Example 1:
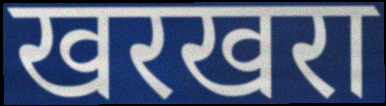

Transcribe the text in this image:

खरखरा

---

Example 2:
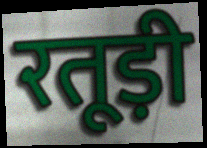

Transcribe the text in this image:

रतूड़ी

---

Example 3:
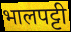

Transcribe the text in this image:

भालपट्टी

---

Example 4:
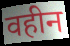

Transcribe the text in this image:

वहीन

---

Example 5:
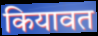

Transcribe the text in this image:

कियावत